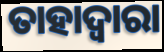
ତାହାଦ୍ୱାରା